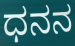
ಧನನ